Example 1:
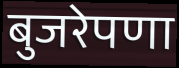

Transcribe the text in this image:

बुजरेपणा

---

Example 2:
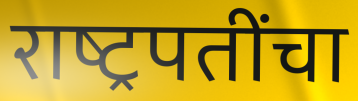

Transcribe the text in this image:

राष्ट्रपतींचा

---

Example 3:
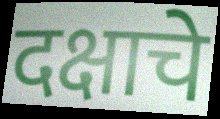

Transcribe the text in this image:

दक्षाचे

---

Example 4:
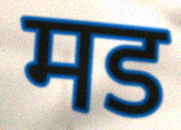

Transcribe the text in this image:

मड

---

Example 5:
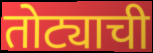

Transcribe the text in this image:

तोट्याची